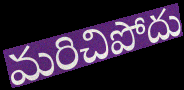
మరిచిపోదు